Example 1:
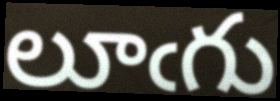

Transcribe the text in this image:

లూఁగు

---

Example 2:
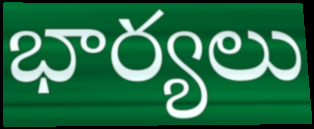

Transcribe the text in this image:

భార్యలు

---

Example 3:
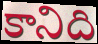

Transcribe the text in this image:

కానిది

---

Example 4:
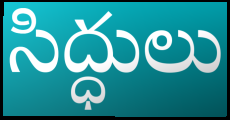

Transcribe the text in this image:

సిద్ధులు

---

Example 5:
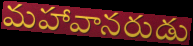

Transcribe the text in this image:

మహావానరుడు